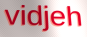
vidjeh